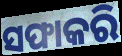
ସଫାକରି